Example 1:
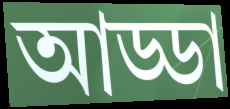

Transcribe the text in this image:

আড্ডা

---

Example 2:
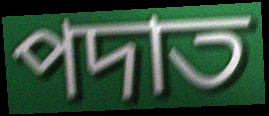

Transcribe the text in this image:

পদাত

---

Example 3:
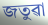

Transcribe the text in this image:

জতুৱা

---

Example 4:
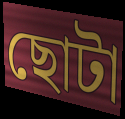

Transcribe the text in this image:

ছোটা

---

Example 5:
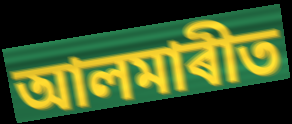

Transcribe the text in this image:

আলমাৰীত